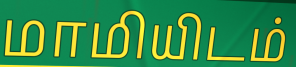
மாமியிடம்